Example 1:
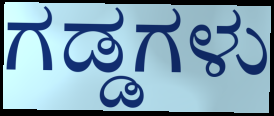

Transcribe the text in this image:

ಗಡ್ಡಗಳು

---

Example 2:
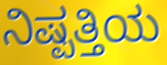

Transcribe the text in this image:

ನಿಷ್ಪತ್ತಿಯ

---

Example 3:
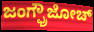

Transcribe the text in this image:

ಜಂಗ್ಫ್ರೌಜೋಚ್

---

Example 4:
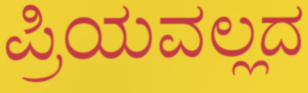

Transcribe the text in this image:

ಪ್ರಿಯವಲ್ಲದ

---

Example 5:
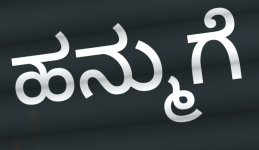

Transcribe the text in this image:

ಹನ್ಮುಗೆ